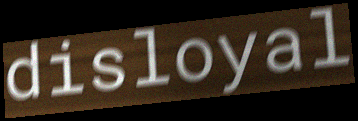
disloyal